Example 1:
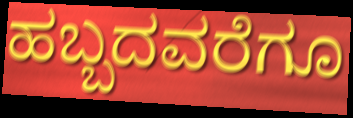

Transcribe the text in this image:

ಹಬ್ಬದವರೆಗೂ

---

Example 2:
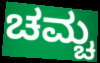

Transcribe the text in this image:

ಚಮ್ಚ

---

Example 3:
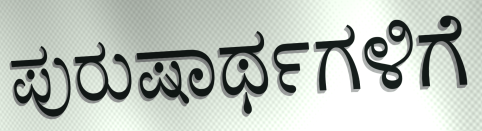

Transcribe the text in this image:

ಪುರುಷಾರ್ಥಗಳಿಗೆ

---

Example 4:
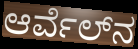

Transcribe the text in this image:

ಆರ್ವೆಲ್‍ನ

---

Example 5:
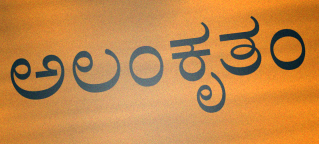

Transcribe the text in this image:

ಅಲಂಕೃತಂ